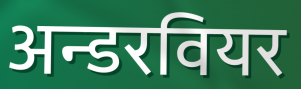
अन्डरवियर